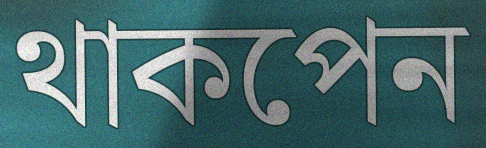
থাকপেন